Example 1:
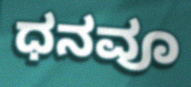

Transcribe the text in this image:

ಧನವೂ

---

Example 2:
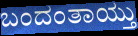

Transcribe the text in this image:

ಬಂದಂತಾಯ್ತು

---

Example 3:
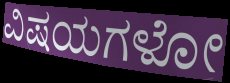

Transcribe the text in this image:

ವಿಷಯಗಳೋ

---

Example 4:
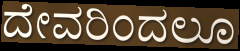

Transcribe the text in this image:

ದೇವರಿಂದಲೂ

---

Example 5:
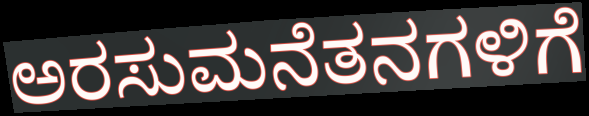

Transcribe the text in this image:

ಅರಸುಮನೆತನಗಳಿಗೆ